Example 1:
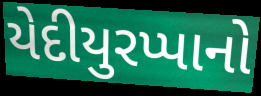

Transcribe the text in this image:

યેદીયુરપ્પાનો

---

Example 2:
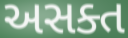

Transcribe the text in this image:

અસક્ત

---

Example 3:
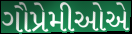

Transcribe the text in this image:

ગૌપ્રેમીઓએ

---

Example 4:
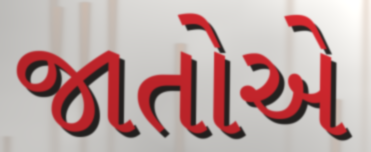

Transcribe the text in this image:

જાતોએ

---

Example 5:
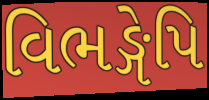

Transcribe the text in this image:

વિભઙ્ગેપિ